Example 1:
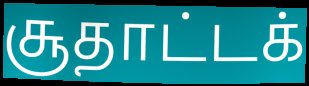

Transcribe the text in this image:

சூதாட்டக்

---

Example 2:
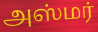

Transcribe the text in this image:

அஸ்மர்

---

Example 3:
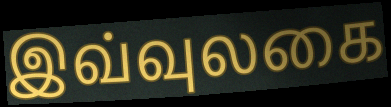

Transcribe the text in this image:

இவ்வுலகை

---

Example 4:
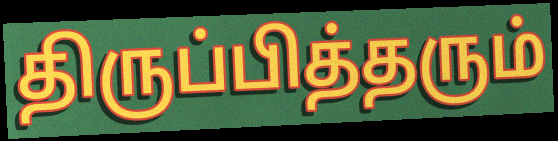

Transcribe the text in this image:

திருப்பித்தரும்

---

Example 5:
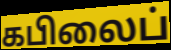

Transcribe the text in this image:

கபிலைப்